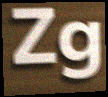
Zg